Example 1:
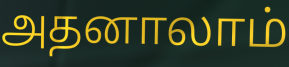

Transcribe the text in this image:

அதனாலாம்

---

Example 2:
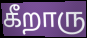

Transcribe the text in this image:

கீறாரு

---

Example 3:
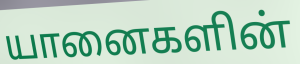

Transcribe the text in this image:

யானைகளின்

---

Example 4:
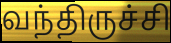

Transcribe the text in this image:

வந்திருச்சி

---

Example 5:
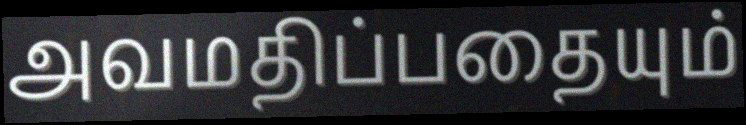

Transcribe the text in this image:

அவமதிப்பதையும்